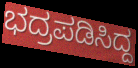
ಭದ್ರಪಡಿಸಿದ್ದ